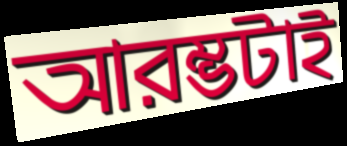
আরম্ভটাই